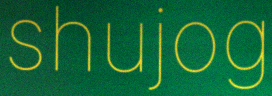
shujog